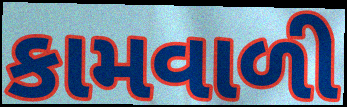
કામવાળી